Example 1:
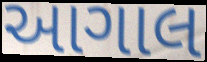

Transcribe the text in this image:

આગાલ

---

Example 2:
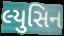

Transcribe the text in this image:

લ્યુસિન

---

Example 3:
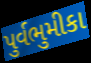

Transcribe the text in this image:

પુર્વભુમીકા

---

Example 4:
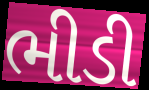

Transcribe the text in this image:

ભીડી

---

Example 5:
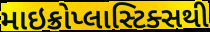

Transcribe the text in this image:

માઇક્રોપ્લાસ્ટિક્સથી